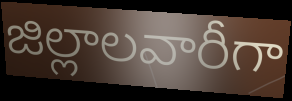
జిల్లాలవారీగా